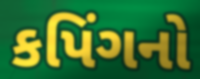
કપિંગનો